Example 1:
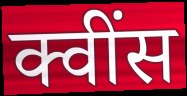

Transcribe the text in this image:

क्वींस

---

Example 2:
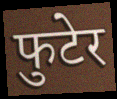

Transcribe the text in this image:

फुटेर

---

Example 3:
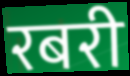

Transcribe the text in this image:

रबरी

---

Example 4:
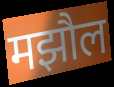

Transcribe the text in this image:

मझौल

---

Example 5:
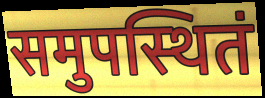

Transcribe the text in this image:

समुपस्थितं